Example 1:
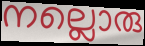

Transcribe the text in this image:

നല്ലൊരു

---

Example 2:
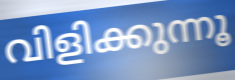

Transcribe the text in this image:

വിളിക്കുന്നൂ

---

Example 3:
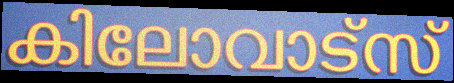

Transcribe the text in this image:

കിലോവാട്സ്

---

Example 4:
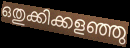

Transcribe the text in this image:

ഒതുക്കിക്കളഞ്ഞു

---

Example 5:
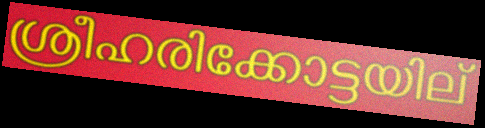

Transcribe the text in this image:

ശ്രീഹരിക്കോട്ടയില്